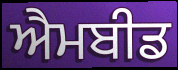
ਐਮਬੀਡ